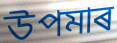
উপমাৰ